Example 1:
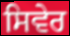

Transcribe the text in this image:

ਸਿਵੇਰ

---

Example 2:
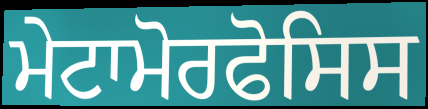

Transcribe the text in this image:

ਮੇਟਾਮੋਰਫੋਸਿਸ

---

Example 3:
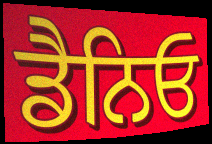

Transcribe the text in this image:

ਡੈਨਿਓ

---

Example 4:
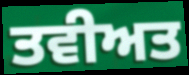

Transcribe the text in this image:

ਤਵੀਅਤ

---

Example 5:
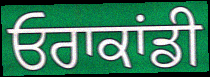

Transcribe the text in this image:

ਓਰਾਕਾਂਡੀ